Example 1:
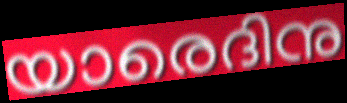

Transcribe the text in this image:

യാരെദിനു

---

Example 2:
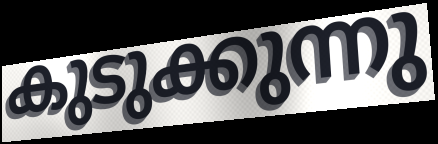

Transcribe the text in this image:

കുടുക്കുന്നു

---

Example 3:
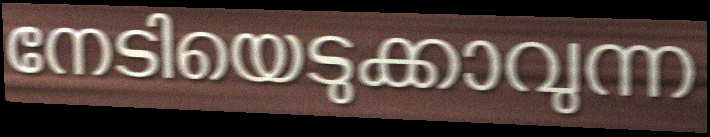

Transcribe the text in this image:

നേടിയെടുക്കാവുന്ന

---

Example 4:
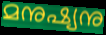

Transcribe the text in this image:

മനുഷ്യനു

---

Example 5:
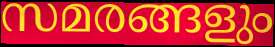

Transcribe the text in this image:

സമരങ്ങളും